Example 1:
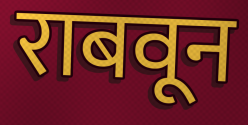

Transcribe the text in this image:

राबवून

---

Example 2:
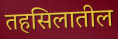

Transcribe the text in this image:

तहसिलातील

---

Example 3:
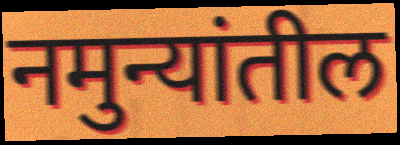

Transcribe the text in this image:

नमुन्यांतील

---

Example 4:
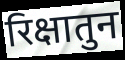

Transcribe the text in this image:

रिक्षातुन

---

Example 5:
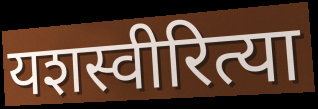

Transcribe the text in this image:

यशस्वीरित्या